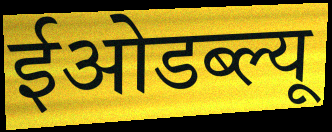
ईओडब्ल्यू